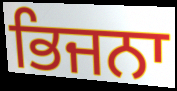
ਭਿਜਨਾ